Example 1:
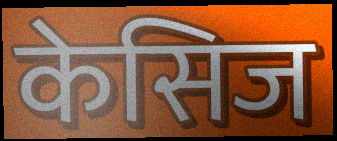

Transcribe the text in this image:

केसिज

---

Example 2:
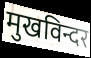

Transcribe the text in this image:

मुखविन्दर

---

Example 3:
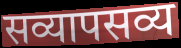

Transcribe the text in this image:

सव्यापसव्य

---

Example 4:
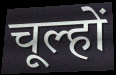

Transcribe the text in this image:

चूल्हों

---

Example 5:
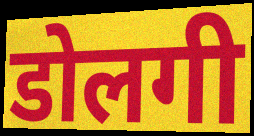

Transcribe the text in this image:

डोलगी